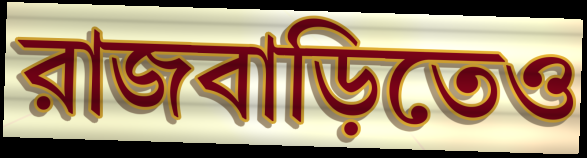
রাজবাড়িতেও